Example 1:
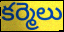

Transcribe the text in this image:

కర్మెలు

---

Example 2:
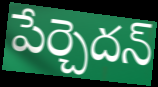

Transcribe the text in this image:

పేర్చెదన్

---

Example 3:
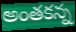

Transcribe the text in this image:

అంతకన్న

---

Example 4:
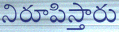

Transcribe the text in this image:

నిరూపిస్తారు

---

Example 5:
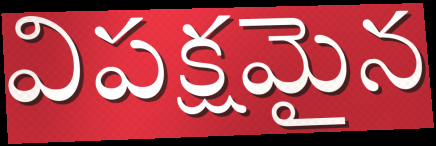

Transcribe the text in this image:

విపక్షమైన